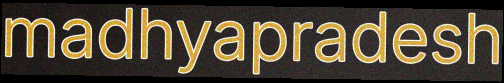
madhyapradesh